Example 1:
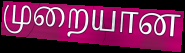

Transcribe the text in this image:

முறையான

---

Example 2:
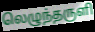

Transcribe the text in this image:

லெழுந்தருளி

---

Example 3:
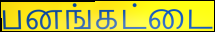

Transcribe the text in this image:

பனங்கட்டை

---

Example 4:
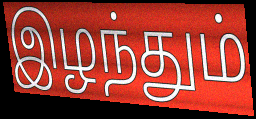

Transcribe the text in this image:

இழந்தும்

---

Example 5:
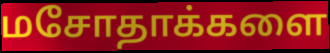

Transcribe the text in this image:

மசோதாக்களை